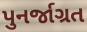
પુનર્જાગ્રત